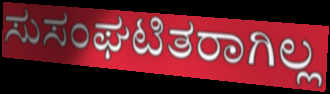
ಸುಸಂಘಟಿತರಾಗಿಲ್ಲ